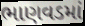
ભાણવડમાં